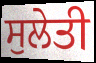
ਸੁਲੇਤੀ